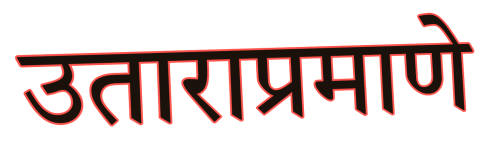
उताराप्रमाणे